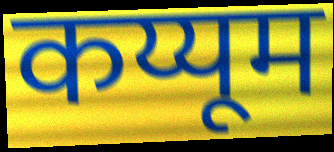
कय्यूम